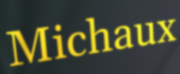
Michaux